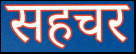
सहचर